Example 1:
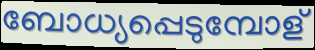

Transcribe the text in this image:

ബോധ്യപ്പെടുമ്പോള്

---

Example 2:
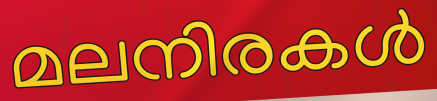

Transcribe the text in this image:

മലനിരകൾ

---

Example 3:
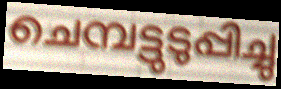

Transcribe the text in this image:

ചെമ്പട്ടുടുപ്പിച്ചു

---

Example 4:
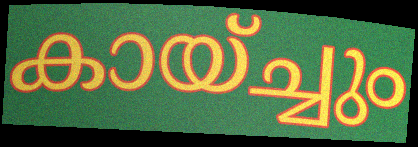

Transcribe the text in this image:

കായ്ച്ചും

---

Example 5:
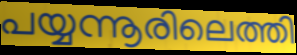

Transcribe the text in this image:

പയ്യന്നൂരിലെത്തി